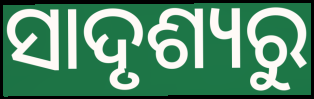
ସାଦୃଶ୍ୟରୁ